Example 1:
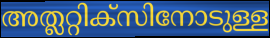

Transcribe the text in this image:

അത്ലറ്റിക്സിനോടുള്ള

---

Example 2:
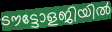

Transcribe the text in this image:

ടൗട്ടോളജിയിൽ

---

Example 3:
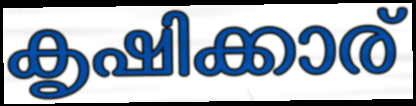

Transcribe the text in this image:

കൃഷിക്കാര്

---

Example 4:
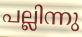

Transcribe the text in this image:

പല്ലിന്നു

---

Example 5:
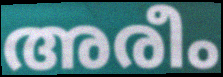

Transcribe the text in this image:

അരീം